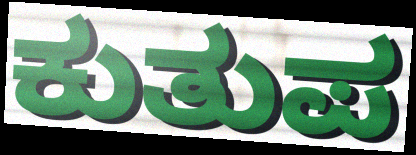
ಕುತುಪ